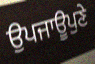
ਉਪਜਾਊਪੁਣੇ